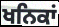
ਖਨਿਕਾਂ